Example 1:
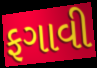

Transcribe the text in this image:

ફગાવી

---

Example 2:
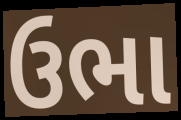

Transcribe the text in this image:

ઉભા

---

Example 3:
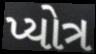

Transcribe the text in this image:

પ્યોત્ર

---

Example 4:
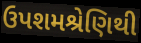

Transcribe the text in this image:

ઉપશમશ્રેણિથી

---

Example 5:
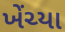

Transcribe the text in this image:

ખેંચ્યા